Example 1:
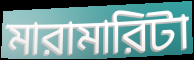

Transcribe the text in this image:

মারামারিটা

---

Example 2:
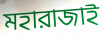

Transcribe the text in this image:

মহারাজাই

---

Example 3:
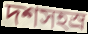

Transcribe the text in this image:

দশসহস্র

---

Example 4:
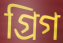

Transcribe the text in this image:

গ্রিগ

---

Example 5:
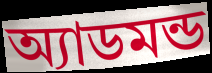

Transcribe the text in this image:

অ্যাডমন্ড